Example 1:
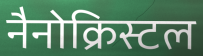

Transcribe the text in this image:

नैनोक्रिस्टल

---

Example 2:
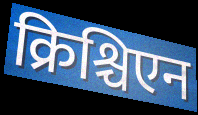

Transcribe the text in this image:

क्रिश्चिएन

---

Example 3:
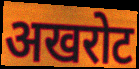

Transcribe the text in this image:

अखरोट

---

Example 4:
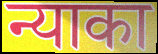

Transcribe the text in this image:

न्याका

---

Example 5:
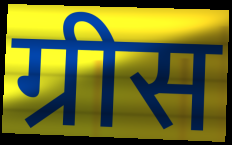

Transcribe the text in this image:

ग्रीस